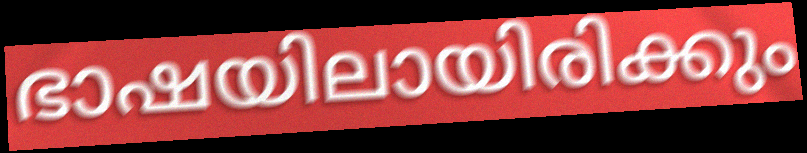
ഭാഷയിലായിരിക്കും